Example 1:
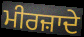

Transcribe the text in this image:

ਮੀਰਜ਼ਾਦੇ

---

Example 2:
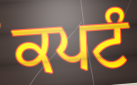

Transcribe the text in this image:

ਕਪਟੰ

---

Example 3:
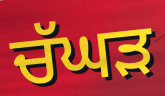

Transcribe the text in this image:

ਚੱਘੜ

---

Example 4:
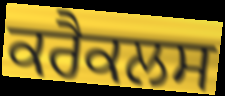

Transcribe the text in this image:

ਕਰੈਕਲਸ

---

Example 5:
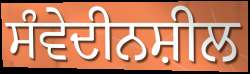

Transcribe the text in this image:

ਸੰਵੇਦੀਨਸ਼ੀਲ